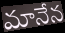
మానేన